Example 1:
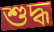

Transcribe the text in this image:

শুদ্ধ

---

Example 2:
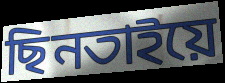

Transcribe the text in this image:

ছিনতাইয়ে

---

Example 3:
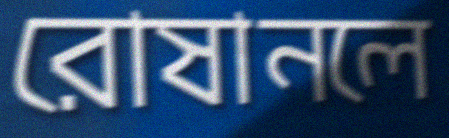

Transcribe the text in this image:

রোষানলে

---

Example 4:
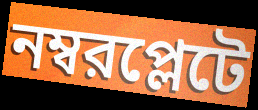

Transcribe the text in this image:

নম্বরপ্লেটে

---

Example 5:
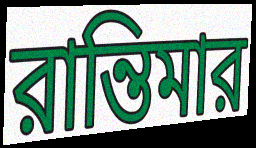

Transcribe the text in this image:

রান্তিমার